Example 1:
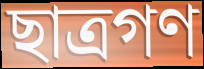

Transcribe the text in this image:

ছাত্রগণ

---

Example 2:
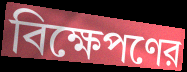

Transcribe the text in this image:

বিক্ষেপণের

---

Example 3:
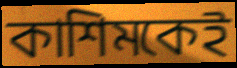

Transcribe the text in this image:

কাশিমকেই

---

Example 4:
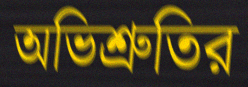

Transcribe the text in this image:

অভিশ্রুতির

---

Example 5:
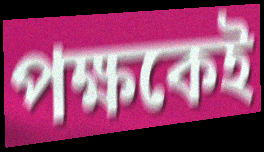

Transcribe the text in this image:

পক্ষকেই